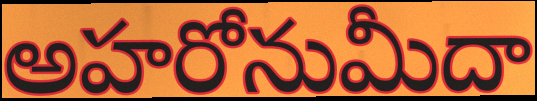
అహరోనుమీదా